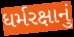
ધર્મરક્ષાનું